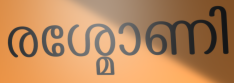
രശ്മോണി